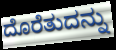
ದೊರೆತುದನ್ನು